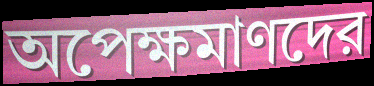
অপেক্ষমাণদের